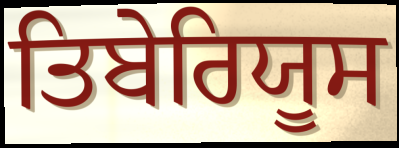
ਤਿਬੇਰਿਯੂਸ